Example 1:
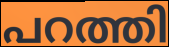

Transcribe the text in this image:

പറത്തി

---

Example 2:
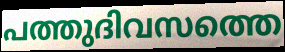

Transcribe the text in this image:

പത്തുദിവസത്തെ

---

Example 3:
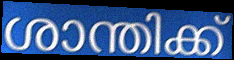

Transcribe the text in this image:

ശാന്തിക്ക്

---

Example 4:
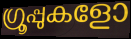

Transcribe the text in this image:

ഗ്രൂപ്പുകളോ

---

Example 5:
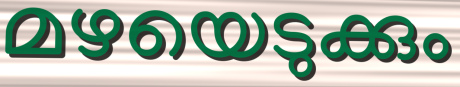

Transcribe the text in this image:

മഴയെടുക്കും